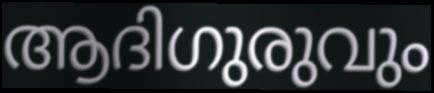
ആദിഗുരുവും